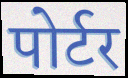
पोर्टर